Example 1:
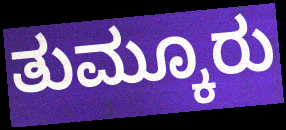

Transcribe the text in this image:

ತುಮ್ಕೂರು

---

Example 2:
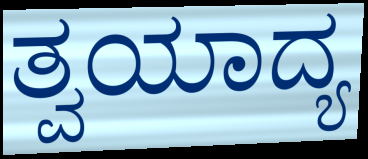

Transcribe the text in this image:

ತ್ವಯಾದ್ಯ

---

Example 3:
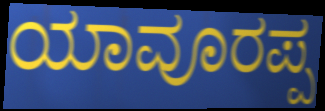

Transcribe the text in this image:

ಯಾವೂರಪ್ಪ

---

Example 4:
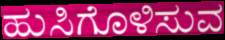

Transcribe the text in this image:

ಹುಸಿಗೊಳಿಸುವ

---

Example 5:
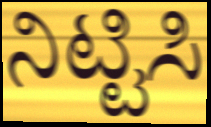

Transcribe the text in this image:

ನಿಟ್ಟಿಸಿ